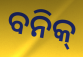
ବନିକ୍